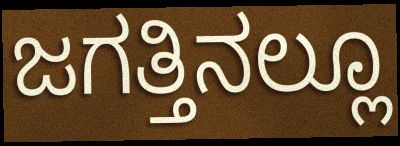
ಜಗತ್ತಿನಲ್ಲೂ